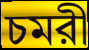
চমরী